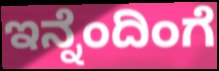
ಇನ್ನೆಂದಿಂಗೆ